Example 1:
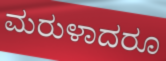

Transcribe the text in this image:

ಮರುಳಾದರೂ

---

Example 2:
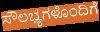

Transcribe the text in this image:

ಸೌಲಭ್ಯಗಳೊಂದಿಗೆ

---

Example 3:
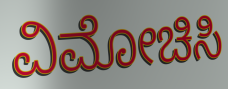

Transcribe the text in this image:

ವಿಮೋಚಿಸಿ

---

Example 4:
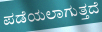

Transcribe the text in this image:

ಪಡೆಯಲಾಗುತ್ತದೆ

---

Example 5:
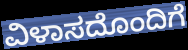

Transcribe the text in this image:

ವಿಳಾಸದೊಂದಿಗೆ